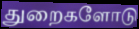
துறைகளோடு